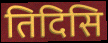
तिदिसि